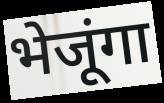
भेजूंगा